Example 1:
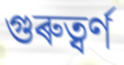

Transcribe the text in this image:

গুৰুত্ৱৰ্ণ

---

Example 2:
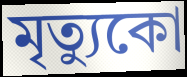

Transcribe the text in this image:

মৃত্যুকো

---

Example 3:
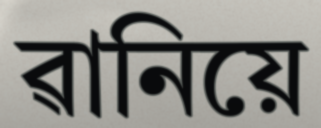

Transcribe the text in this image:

ৱানিয়ে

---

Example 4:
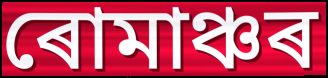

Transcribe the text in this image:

ৰোমাঞ্চৰ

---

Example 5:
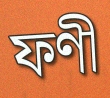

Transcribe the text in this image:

ফণী